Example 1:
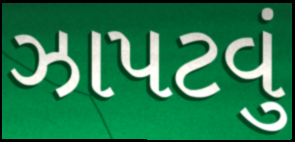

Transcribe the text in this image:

ઝાપટવું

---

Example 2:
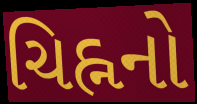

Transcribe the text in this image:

ચિહ્નનો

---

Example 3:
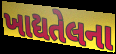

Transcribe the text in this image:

ખાદ્યતેલના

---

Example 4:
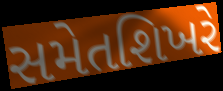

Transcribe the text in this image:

સમેતશિખરે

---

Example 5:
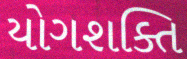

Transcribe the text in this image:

યોગશક્તિ